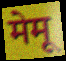
मेमू